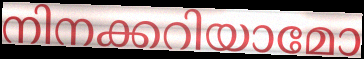
നിനക്കറിയാമോ